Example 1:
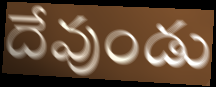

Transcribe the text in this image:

దేవుండు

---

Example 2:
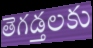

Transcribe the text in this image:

తెగడ్తలకు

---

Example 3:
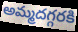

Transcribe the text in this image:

అమ్మదగ్గరకి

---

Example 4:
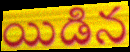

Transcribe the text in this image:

యిడిన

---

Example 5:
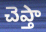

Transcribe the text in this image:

చెప్తా